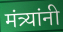
मंत्र्यांनी